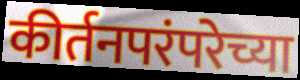
कीर्तनपरंपरेच्या